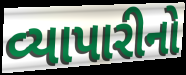
વ્યાપારીનો